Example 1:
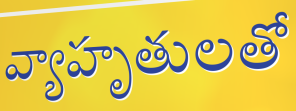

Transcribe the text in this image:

వ్యాహృతులతో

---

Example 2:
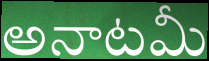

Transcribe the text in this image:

అనాటమీ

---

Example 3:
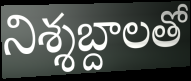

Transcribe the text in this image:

నిశ్శబ్దాలతో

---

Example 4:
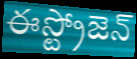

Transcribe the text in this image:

ఈస్ట్రోజెన్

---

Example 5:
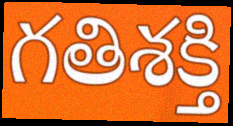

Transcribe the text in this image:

గతిశక్తి